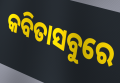
କବିତାସବୁରେ